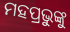
ମହପ୍ରଭୁଙ୍କୁ